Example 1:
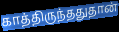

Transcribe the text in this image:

காத்திருந்ததுதான்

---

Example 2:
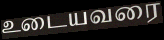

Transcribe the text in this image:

உடையவரை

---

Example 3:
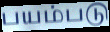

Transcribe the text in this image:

பயம்படு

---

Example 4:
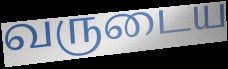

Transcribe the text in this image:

வருடைய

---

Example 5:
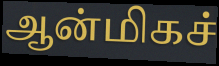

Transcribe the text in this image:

ஆன்மிகச்